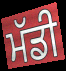
ਮੱਡੀ